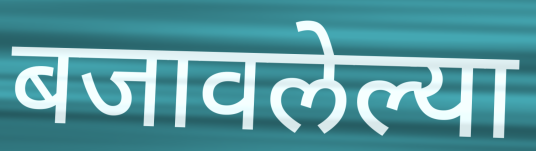
बजावलेल्या